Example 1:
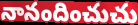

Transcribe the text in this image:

నానందించుచు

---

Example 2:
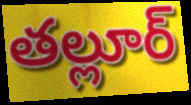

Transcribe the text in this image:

తల్లూర్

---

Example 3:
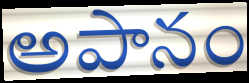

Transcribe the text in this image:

అపానం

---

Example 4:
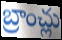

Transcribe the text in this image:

బ్రాంచ్లు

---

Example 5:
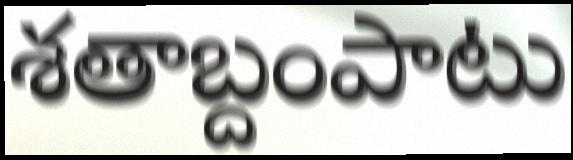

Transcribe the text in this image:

శతాబ్దంపాటు